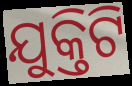
ଯୁକ୍ତିଟି